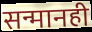
सन्मानही